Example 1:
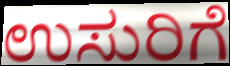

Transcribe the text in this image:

ಉಸುರಿಗೆ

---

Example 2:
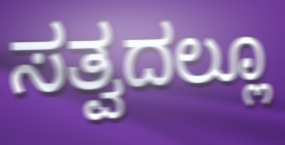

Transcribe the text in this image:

ಸತ್ವದಲ್ಲೂ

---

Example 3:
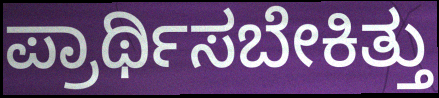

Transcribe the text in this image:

ಪ್ರಾರ್ಥಿಸಬೇಕಿತ್ತು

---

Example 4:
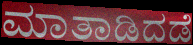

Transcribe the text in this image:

ಮಾತಾಡಿದಡೆ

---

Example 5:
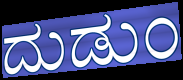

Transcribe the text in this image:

ದುಡುಂ